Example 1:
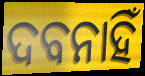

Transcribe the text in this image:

ଦବନାହିଁ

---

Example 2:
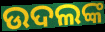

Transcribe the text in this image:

ଉଦଲଙ୍କ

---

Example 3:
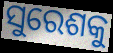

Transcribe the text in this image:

ସୁରେଶକୁ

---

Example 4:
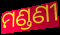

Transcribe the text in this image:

ମଣ୍ଡଣୀ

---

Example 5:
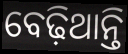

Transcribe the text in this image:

ବେଢ଼ିଥାନ୍ତି